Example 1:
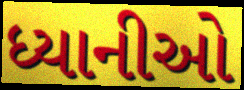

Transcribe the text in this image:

ધ્યાનીઓ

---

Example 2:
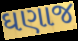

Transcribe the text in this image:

ઘણાજ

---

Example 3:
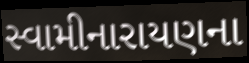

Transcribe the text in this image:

સ્વામીનારાયણના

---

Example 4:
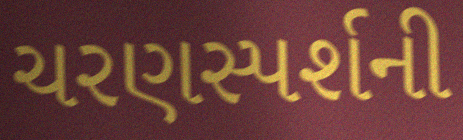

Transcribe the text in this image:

ચરણસ્પર્શની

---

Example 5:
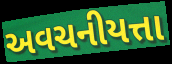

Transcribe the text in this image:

અવચનીયત્તા